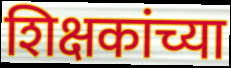
शिक्षकांच्‍या